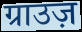
ग्राउज़